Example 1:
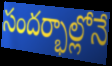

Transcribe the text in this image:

సందర్భాల్లోనే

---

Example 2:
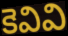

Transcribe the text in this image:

కెవివి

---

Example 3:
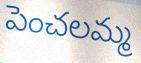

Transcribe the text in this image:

పెంచలమ్మ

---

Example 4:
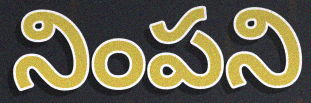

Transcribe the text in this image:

నింపని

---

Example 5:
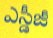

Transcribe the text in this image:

ఎస్డీజీ